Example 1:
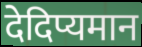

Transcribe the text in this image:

देदिप्यमान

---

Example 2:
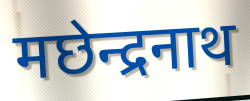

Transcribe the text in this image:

मछेन्द्रनाथ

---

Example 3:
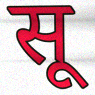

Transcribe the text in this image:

सू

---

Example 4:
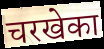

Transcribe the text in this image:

चरखेका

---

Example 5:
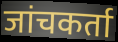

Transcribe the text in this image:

जांचकर्ता